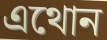
এথোন